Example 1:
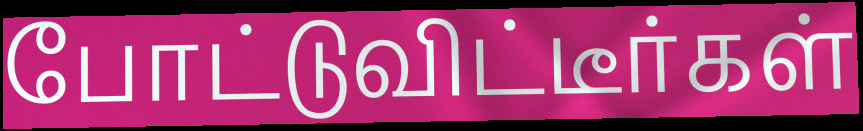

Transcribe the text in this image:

போட்டுவிட்டீர்கள்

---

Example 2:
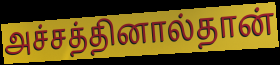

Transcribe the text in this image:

அச்சத்தினால்தான்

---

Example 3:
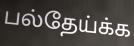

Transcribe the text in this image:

பல்தேய்க்க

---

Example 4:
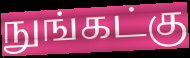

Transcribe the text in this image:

நுங்கட்கு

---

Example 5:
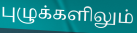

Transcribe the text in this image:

புழுக்களிலும்